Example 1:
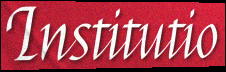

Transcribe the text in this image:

Institutio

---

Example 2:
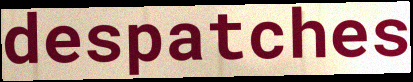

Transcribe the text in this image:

despatches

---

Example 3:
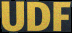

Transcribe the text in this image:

UDF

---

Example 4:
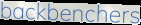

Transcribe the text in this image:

backbenchers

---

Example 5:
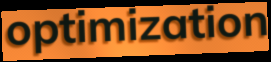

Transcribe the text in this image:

optimization